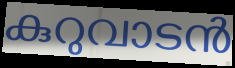
കുറുവാടൻ